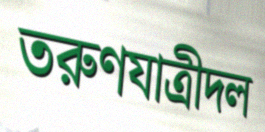
তরুণযাত্রীদল